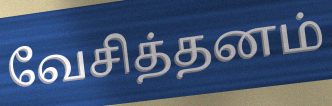
வேசித்தனம்